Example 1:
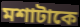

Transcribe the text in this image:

মশাটাকে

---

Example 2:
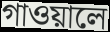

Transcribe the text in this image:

গাওয়ালে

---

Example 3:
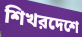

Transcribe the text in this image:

শিখরদেশে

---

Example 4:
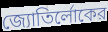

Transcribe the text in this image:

জ্যোতির্লোকের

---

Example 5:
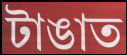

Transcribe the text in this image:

টাঙাত